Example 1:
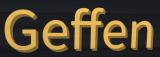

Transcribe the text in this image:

Geffen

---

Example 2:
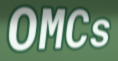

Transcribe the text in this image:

OMCs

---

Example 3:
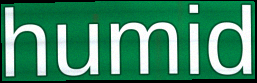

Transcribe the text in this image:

humid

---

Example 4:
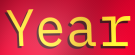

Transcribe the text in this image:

Year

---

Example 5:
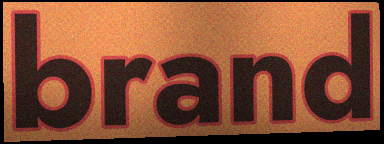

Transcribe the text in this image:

brand